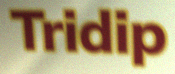
Tridip